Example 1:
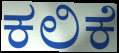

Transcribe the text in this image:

ಕಲಿಕೆ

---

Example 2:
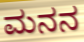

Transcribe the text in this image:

ಮನನ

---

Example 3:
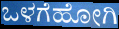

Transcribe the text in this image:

ಒಳಗೆಹೋಗಿ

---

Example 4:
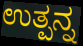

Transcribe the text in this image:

ಉತ್ಪನ್ನ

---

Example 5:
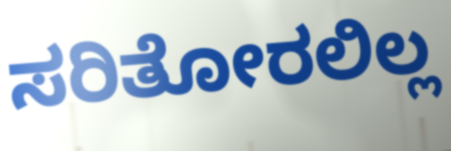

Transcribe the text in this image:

ಸರಿತೋರಲಿಲ್ಲ